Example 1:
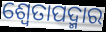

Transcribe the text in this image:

ଶ୍ଵେତାପଦ୍ମାର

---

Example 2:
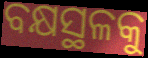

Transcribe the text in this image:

ବକ୍ଷସ୍ଥଳକୁ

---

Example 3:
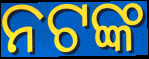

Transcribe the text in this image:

ନଟଙ୍କ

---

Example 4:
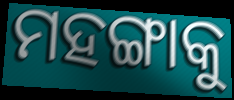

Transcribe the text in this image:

ମହଙ୍ଗାକୁ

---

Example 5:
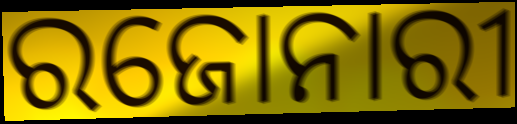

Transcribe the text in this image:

ରଜୋନାରୀ